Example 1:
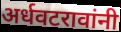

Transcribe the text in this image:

अर्धवटरावांनी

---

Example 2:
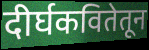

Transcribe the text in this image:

दीर्घकवितेतून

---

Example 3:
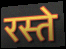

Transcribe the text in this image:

रस्ते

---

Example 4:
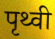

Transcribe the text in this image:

पृथ्वी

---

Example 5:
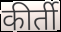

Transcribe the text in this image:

कीर्ती